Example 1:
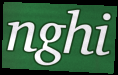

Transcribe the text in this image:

nghi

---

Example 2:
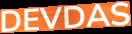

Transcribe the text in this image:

DEVDAS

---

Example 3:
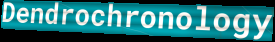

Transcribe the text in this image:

Dendrochronology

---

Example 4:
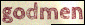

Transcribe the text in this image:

godmen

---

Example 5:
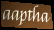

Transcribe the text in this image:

aaptha